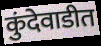
कुंदेवाडीत